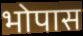
भोपास